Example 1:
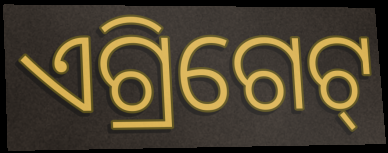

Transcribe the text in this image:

ଏଗ୍ରିଗେଟ୍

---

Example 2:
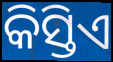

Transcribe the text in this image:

କିସ୍ତିଏ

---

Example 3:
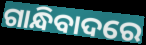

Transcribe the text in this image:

ଗାନ୍ଧିବାଦରେ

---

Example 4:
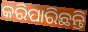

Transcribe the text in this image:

କରିପାରିଛନ୍ତି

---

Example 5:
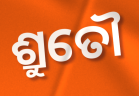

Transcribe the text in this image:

ଶ୍ରୁତୌ